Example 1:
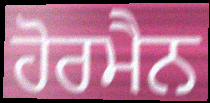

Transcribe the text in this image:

ਹੋਰਮੈਨ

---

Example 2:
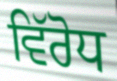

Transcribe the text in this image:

ਵਿੱਰੋਧ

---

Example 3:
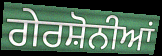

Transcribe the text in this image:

ਗੇਰਸ਼ੋਨੀਆਂ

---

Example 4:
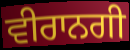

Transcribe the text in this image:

ਵੀਰਾਨਗੀ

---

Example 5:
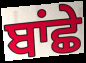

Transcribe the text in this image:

ਬਾਂਛੇ